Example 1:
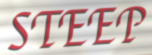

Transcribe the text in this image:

STEEP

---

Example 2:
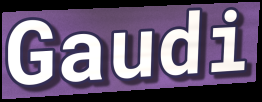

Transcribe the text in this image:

Gaudi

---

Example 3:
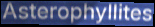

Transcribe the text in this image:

Asterophyllites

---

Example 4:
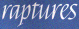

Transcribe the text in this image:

raptures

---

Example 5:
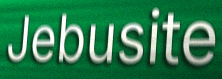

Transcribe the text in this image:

Jebusite